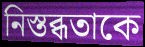
নিস্তব্ধতাকে